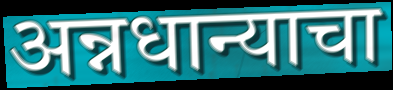
अन्नधान्याचा